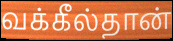
வக்கீல்தான்